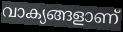
വാക്യങ്ങളാണ്